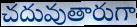
చదువుతారుగా